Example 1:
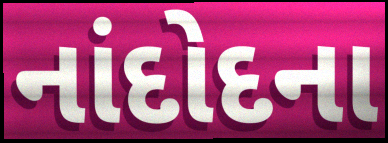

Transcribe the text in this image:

નાંદોદના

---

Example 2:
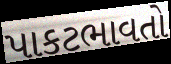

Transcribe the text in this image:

પાકટભાવતો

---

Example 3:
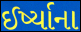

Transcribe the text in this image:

ઈર્ષ્યાના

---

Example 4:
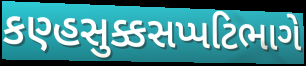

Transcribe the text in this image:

કણ્હસુક્કસપ્પટિભાગે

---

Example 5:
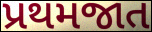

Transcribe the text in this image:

પ્રથમજાત